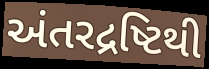
અંતરદ્રષ્ટિથી